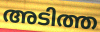
അടിത്ത